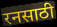
रनसाठी